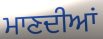
ਮਾਣਦੀਆਂ